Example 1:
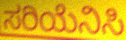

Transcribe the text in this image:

ಸರಿಯೆನಿಸಿ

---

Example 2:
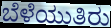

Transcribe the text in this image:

ಬೆಳೆಯುತಿರು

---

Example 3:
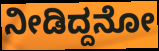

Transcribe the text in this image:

ನೀಡಿದ್ದನೋ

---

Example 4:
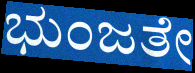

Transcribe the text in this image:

ಭುಂಜತೇ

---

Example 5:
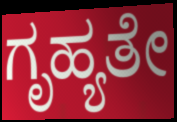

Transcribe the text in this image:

ಗೃಹ್ಯತೇ